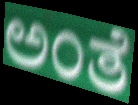
ಅಂತೆ